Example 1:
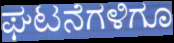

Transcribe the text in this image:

ಘಟನೆಗಳಿಗೂ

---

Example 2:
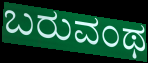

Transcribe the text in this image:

ಬರುವಂಥ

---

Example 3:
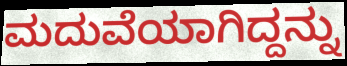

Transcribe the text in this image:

ಮದುವೆಯಾಗಿದ್ದನ್ನು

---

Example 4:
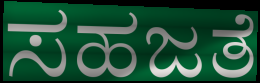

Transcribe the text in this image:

ಸಹಜತೆ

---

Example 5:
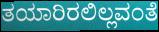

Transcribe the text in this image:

ತಯಾರಿರಲಿಲ್ಲವಂತೆ